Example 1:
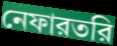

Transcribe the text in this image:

নেফারতরি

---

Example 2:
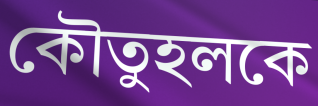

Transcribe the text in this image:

কৌতুহলকে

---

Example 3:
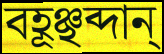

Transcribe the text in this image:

বহূঞ্ছব্দান্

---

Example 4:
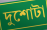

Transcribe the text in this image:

দুশোটা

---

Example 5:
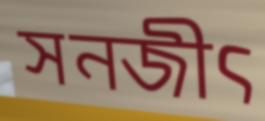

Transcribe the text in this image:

সনজীৎ